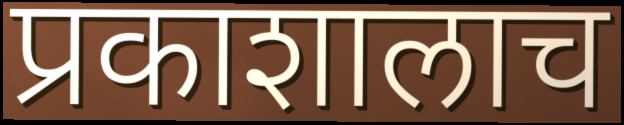
प्रकाशालाच